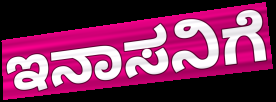
ಇನಾಸನಿಗೆ